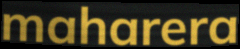
maharera